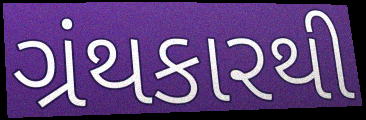
ગ્રંથકારથી